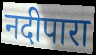
नदीपारा